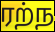
ரற்ந